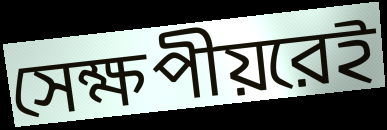
সেক্ষপীয়রেই